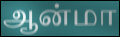
ஆன்மா